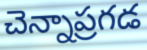
చెన్నాప్రగడ